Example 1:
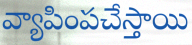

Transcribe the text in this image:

వ్యాపింపచేస్తాయి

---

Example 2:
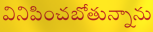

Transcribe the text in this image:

వినిపించబోతున్నాను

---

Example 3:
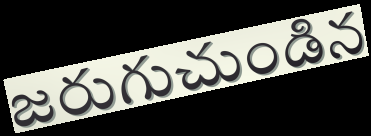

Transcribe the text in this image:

జరుగుచుండిన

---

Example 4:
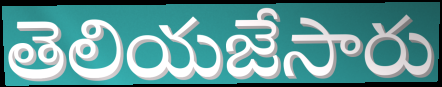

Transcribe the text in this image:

తెలియజేసారు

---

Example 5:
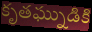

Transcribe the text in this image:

కృతఘ్నుడికి